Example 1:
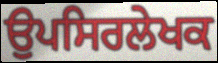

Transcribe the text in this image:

ਉਪਸਿਰਲੇਖਕ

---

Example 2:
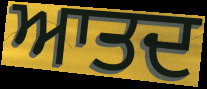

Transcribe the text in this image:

ਆਤਦ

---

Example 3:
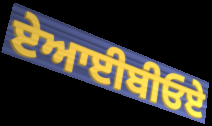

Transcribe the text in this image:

ਏਆਈਬੀਓਏ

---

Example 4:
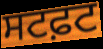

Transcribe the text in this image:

ਸਟਫ਼ਟ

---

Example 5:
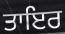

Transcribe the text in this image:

ਤਾਇਰ